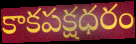
కాకపక్షధరం